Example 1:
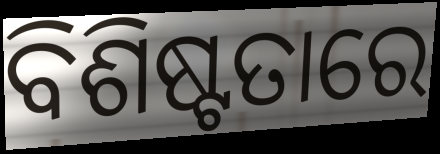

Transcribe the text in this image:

ବିଶିଷ୍ଟତାରେ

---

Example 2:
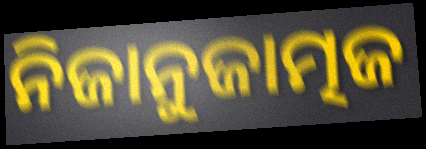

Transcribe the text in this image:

ନିଜାନୁଜାତ୍ମଜ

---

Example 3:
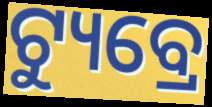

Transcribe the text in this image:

ଟ୍ୟୁବ୍ରେ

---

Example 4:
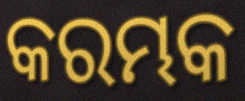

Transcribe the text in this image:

କରମ୍ଭକ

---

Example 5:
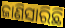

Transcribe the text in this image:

ଜାଣିସାରିଛି